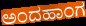
ಅಂದಹಾಂಗ